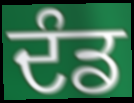
ਦੰਡ